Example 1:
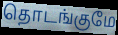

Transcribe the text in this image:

தொடங்குமே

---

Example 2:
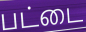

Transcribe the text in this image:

பட்டை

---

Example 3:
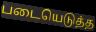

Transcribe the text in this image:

படையெடுத்த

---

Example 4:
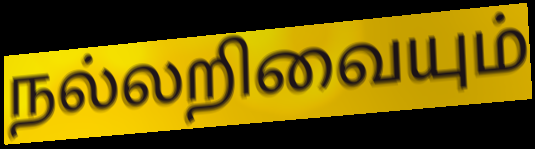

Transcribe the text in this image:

நல்லறிவையும்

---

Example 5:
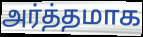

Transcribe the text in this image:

அர்த்தமாக